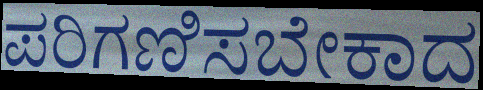
ಪರಿಗಣಿಸಬೇಕಾದ